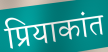
प्रियाकांत